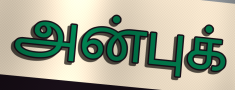
அன்புக்